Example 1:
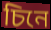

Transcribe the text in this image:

চিনে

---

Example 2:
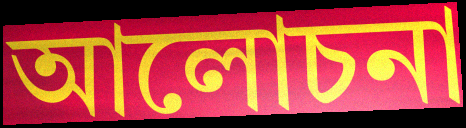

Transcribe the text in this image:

আলোচনা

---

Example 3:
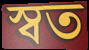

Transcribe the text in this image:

স্বত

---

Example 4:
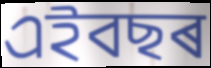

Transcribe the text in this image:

এইবছৰ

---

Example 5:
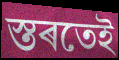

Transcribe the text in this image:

স্তৰতেই